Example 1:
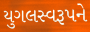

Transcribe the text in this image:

યુગલસ્વરૂપને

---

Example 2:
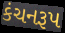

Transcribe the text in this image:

કંચનરૂપ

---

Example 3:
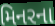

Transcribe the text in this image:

મિનરના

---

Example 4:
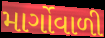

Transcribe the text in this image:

માર્ગોવાળી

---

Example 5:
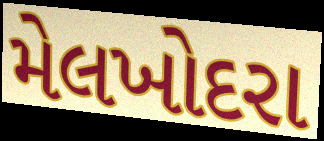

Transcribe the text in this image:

મેલખોદરા